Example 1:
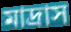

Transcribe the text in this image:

মাদ্রাস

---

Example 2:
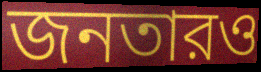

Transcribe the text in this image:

জনতারও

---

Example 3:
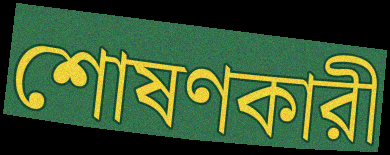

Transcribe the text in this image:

শোষণকারী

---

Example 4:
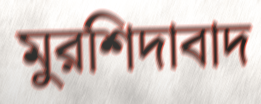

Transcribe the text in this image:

মুরশিদাবাদ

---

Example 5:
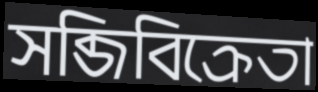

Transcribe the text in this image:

সব্জিবিক্রেতা